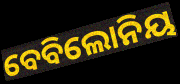
ବେବିଲୋନିୟ